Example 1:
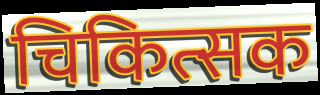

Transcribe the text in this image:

चिकित्सक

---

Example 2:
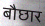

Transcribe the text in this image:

बौछार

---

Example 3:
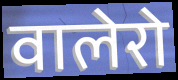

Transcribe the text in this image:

वालेरो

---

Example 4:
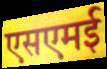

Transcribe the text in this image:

एसएमई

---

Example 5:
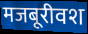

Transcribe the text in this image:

मजबूरीवश